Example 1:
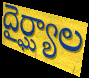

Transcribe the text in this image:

దైర్ఘ్యాల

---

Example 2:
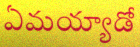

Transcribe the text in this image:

ఏమయ్యాడో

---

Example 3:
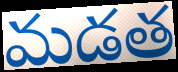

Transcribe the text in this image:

మడత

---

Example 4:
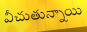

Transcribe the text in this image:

వీచుతున్నాయి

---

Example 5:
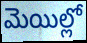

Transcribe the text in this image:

మెయిల్లో